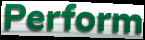
Perform